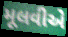
મૂલવીએ